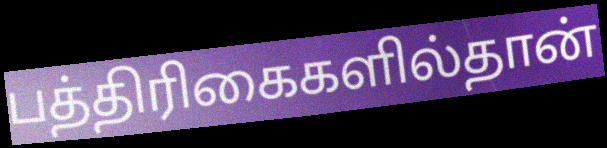
பத்திரிகைகளில்தான்